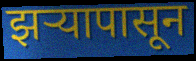
झऱ्यापासून